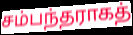
சம்பந்தராகத்